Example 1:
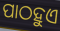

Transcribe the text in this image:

ପାଠହୁଏ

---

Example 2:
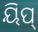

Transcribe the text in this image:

ୟିପ୍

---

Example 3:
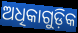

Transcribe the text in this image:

ଅଧିକାଗୁଡ଼ିକ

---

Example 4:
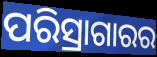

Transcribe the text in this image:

ପରିସ୍ରାଗାରର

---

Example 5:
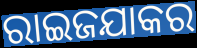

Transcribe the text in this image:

ରାଇଜଯାକର